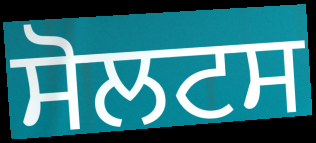
ਸੋਲਟਸ